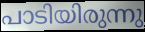
പാടിയിരുന്നു